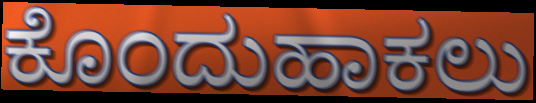
ಕೊಂದುಹಾಕಲು